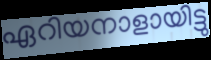
ഏറിയനാളായിട്ടു